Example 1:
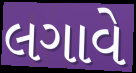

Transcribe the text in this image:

લગાવે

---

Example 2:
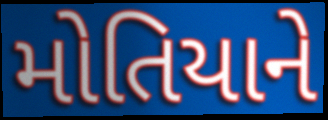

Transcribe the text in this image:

મોતિયાને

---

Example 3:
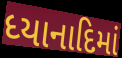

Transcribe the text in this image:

ધ્યાનાદિમાં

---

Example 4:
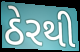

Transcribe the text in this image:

ઠેરથી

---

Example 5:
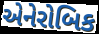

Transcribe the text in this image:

એનેરોબિક